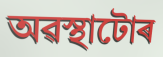
অৱস্থাটোৰ